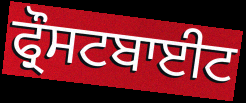
ਫ੍ਰੌਸਟਬਾਈਟ